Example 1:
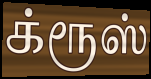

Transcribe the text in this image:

க்ரூஸ்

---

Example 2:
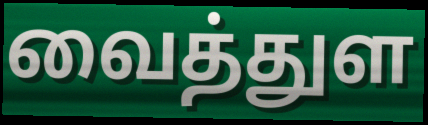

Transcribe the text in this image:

வைத்துள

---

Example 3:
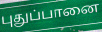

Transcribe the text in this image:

புதுப்பானை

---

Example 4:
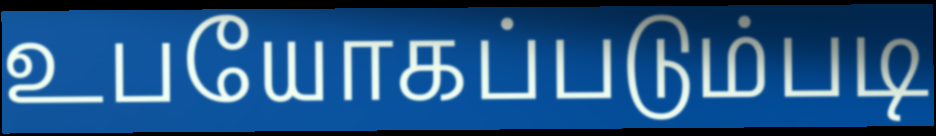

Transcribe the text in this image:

உபயோகப்படும்படி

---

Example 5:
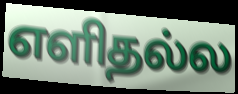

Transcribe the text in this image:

எளிதல்ல